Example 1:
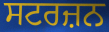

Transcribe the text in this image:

ਸਟਰਜ਼ਨ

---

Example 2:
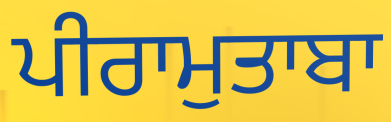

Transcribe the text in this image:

ਪੀਰਾਮੁਤਾਬਾ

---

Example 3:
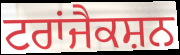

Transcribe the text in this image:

ਟਰਾਂਜੈਕਸ਼ਨ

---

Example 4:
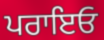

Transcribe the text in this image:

ਪਰਾਇਓ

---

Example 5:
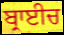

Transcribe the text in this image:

ਬ੍ਰਾਈਚ